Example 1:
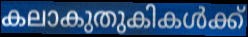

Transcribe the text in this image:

കലാകുതുകികൾക്ക്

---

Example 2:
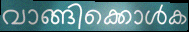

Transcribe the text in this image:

വാങ്ങിക്കൊൾക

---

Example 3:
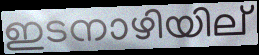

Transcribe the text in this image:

ഇടനാഴിയില്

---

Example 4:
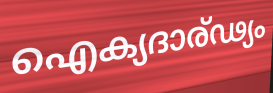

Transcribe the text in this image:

ഐക്യദാര്ഢ്യം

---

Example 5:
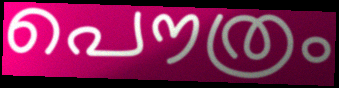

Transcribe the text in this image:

പൌത്രം